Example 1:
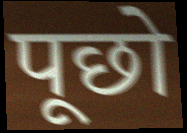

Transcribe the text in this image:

पूछो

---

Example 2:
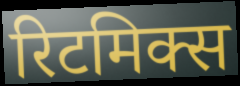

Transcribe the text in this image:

रिटमिक्स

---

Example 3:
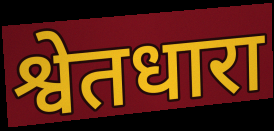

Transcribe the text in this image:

श्वेतधारा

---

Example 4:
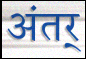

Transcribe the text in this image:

अंतर्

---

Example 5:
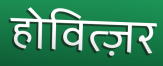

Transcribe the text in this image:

होवित्ज़र